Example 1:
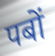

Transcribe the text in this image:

पबों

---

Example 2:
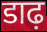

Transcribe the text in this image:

डाढ़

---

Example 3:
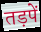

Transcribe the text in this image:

तड़पें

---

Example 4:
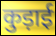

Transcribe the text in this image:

कुड़ाई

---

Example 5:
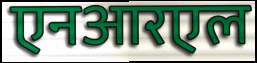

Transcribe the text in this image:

एनआरएल